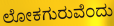
ಲೋಕಗುರುವೆಂದು